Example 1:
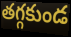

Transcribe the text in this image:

తగ్గకుండ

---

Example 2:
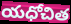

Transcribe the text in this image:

యధోచిత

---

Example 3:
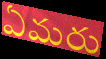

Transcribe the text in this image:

ఏమరు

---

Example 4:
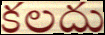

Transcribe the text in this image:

కలదు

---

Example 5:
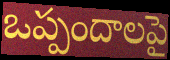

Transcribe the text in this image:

ఒప్పందాలపై